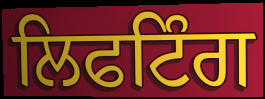
ਲਿਫਟਿੰਗ